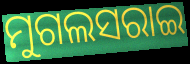
ମୁଗଲସରାଇ